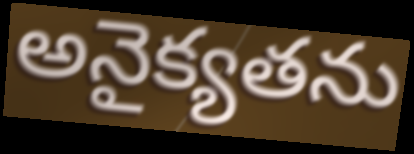
అనైక్యతను